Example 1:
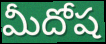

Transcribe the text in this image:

మీదోష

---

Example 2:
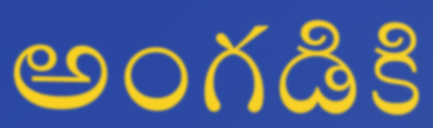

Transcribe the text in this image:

అంగడికి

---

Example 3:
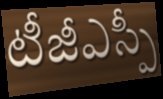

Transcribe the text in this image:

టీజీఎస్పీ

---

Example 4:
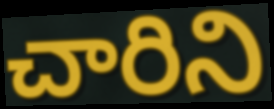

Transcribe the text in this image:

చారిని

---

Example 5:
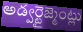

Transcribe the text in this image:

అడ్వర్టైజ్మెంట్లు